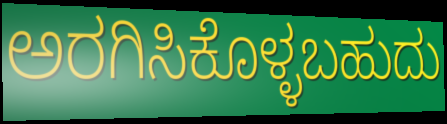
ಅರಗಿಸಿಕೊಳ್ಳಬಹುದು